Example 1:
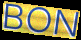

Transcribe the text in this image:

BON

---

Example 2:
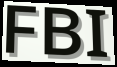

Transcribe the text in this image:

FBI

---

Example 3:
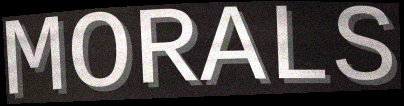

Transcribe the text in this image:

MORALS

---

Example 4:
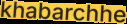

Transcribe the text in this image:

khabarchhe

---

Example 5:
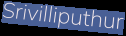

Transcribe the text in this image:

Srivilliputhur